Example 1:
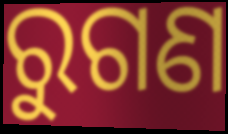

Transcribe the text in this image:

ରୁଗଣ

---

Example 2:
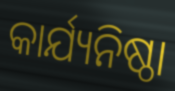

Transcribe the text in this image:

କାର୍ଯ୍ୟନିଷ୍ଠା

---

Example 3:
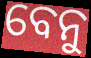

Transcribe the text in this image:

ବେନୁ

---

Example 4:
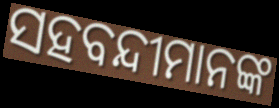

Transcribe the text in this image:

ସହବନ୍ଦୀମାନଙ୍କ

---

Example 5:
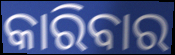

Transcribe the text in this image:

କାରିବାର